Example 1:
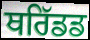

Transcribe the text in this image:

ਥਰਿੱਡਡ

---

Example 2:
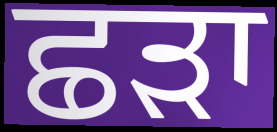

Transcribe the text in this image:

ਛਡ਼ਾ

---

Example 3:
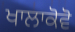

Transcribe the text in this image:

ਖਾਲਾਕੋਵੋ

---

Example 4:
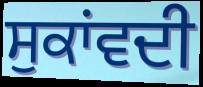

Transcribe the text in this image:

ਸੁਕਾਂਵਦੀ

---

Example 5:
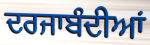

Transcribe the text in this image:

ਦਰਜਾਬੰਦੀਆਂ